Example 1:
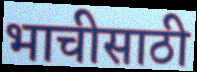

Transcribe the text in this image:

भाचीसाठी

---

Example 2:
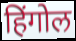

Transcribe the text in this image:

हिंगोल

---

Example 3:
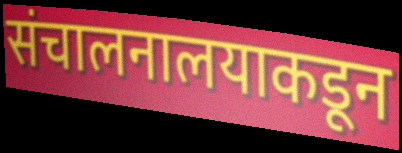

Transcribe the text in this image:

संचालनालयाकडून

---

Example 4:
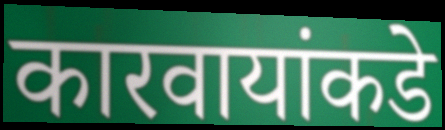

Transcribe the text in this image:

कारवायांकडे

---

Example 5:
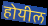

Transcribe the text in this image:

होयील